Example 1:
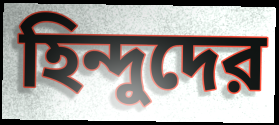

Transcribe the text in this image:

হিন্দুদের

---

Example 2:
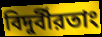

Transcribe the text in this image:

বিদুর্বীরতাং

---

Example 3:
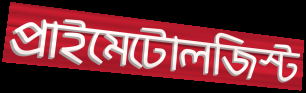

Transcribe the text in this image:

প্রাইমেটোলজিস্ট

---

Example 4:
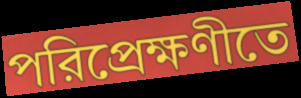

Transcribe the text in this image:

পরিপ্রেক্ষণীতে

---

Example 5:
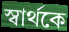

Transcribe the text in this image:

স্বার্থকে